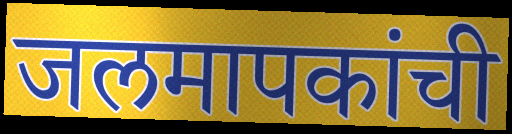
जलमापकांची